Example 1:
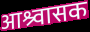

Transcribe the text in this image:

आश्र्वासक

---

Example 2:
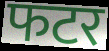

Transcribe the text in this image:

फटर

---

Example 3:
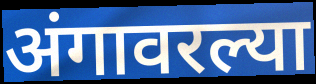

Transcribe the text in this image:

अंगावरल्या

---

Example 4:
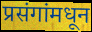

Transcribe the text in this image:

प्रसंगांमधून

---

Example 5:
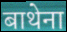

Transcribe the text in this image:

बाथेना